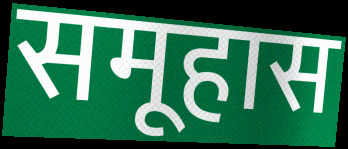
समूहास